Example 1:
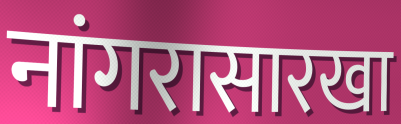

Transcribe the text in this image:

नांगरासारखा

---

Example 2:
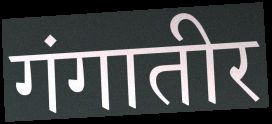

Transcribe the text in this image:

गंगातीर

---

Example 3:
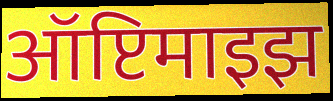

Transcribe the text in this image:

ऑप्टिमाइझ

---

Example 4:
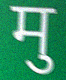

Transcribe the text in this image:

मु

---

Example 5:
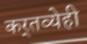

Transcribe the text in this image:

कर्तव्येही